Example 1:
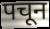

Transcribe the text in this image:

पचून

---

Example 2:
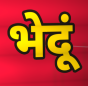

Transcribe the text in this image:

भेदूं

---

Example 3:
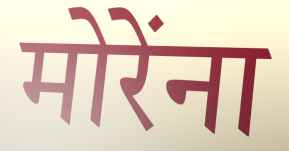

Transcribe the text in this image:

मोरेंना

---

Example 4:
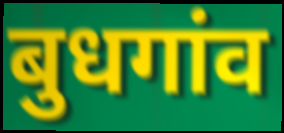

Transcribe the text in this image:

बुधगांव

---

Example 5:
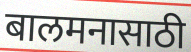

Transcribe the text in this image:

बालमनासाठी